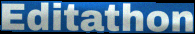
Editathon